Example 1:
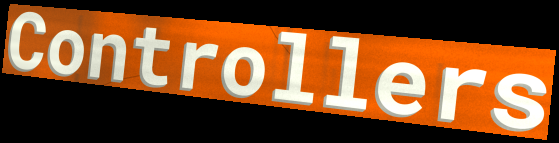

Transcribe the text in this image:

Controllers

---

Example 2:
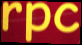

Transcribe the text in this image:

rpc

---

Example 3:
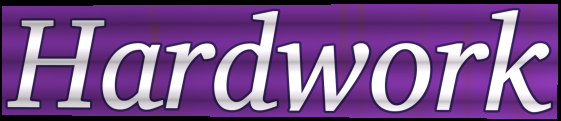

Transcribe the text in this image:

Hardwork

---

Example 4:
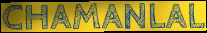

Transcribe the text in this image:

CHAMANLAL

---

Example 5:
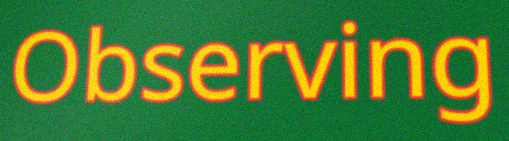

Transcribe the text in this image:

Observing